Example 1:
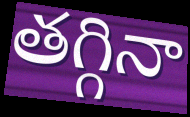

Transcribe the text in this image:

తగ్గినా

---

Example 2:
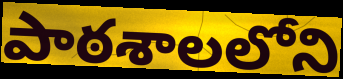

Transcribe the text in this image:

పాఠశాలలోని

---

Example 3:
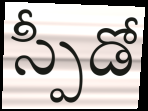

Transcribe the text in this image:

స్పీడో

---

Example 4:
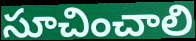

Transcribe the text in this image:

సూచించాలి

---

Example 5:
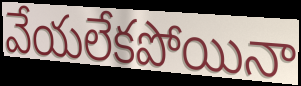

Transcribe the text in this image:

వేయలేకపోయినా